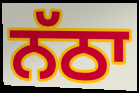
ਨੱਠਾ